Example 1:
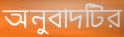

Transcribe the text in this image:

অনুবাদটির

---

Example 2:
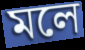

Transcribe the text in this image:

মলে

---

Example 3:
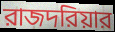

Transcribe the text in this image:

রাজদরিয়ার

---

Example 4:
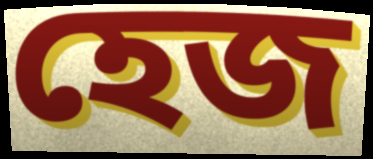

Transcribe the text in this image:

হেজ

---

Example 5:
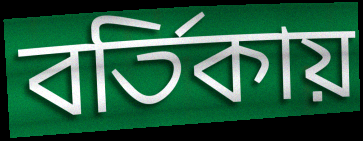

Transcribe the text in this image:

বর্তিকায়